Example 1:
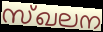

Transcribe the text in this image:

സ്ഖലന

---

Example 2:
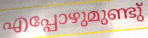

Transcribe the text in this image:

എപ്പോഴുമുണ്ടു്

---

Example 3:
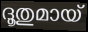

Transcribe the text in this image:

ദൂതുമായ്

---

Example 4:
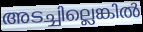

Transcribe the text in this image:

അടച്ചില്ലെങ്കിൽ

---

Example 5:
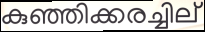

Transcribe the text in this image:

കുഞ്ഞിക്കരച്ചില്